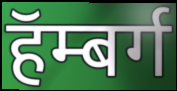
हॅम्बर्ग